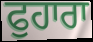
ਫੁਹਾਰਾ